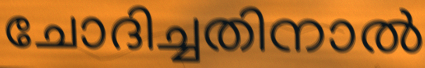
ചോദിച്ചതിനാൽ